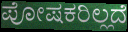
ಪೋಷಕರಿಲ್ಲದೆ